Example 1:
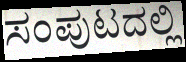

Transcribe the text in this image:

ಸಂಪುಟದಲ್ಲಿ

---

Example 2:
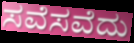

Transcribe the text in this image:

ಸವೆಸವೆದು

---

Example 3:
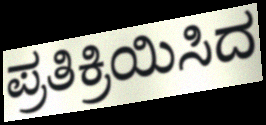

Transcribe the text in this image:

ಪ್ರತಿಕ್ರಿಯಿಸಿದ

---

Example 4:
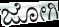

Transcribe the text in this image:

ಜೋಗಿ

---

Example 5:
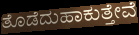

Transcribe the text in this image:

ತೊಡೆದುಹಾಕುತ್ತೇವೆ